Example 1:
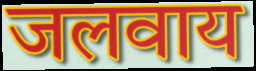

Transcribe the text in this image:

जलवाय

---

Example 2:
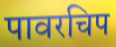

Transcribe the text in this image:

पावरचिप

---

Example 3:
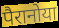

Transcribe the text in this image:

पैरानोया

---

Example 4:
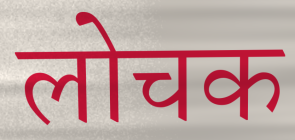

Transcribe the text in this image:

लोचक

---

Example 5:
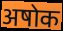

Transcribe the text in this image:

अषोक